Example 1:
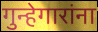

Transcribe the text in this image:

गुन्हेगारांना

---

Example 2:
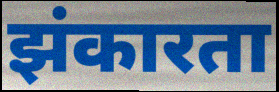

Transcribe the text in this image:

झंकारता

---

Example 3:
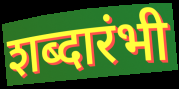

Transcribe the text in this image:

शब्दारंभी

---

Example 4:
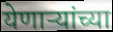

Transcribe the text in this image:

येणाऱ्यांच्या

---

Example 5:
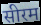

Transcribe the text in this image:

सीरम